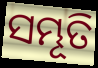
ସମ୍ଭୂତି